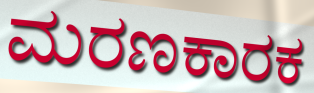
ಮರಣಕಾರಕ